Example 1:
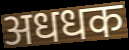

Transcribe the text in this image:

अधधक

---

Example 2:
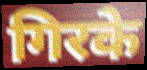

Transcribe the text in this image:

गिरके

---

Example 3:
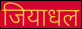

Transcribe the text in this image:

जियाधल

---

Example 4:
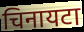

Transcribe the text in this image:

चिनायटा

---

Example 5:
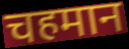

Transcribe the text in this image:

चहमान